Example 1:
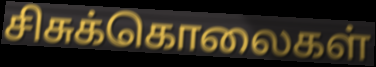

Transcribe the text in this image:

சிசுக்கொலைகள்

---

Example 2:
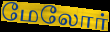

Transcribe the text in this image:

மேலோர்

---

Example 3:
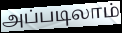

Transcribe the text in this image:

அப்படிலாம்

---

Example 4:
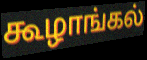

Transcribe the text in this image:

கூழாங்கல்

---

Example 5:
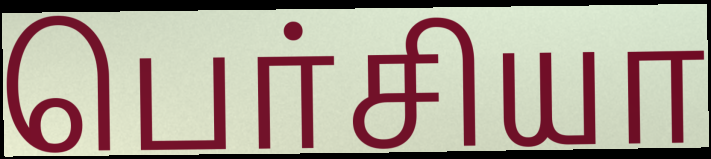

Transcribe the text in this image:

பெர்சியா